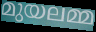
മുയലമ്മ